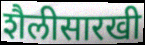
शैलीसारखी